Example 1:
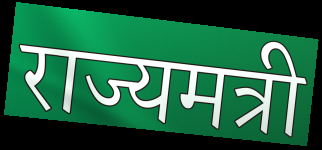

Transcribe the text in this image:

राज्यमत्री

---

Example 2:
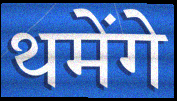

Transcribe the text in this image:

थमेंगे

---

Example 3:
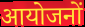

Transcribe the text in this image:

आयोजनों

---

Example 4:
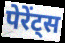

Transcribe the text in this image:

पेरेंट्स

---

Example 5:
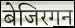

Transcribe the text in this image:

बेजिरगन